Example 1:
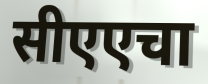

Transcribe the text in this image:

सीएएचा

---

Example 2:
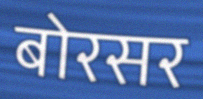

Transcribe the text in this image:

बोरसर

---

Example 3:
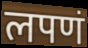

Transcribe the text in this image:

लपणं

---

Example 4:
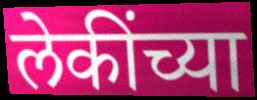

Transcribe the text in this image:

लेकींच्या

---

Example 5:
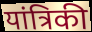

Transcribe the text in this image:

यांत्रिकी